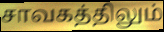
சாவகத்திலும்